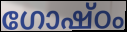
ഗോഷ്ഠം